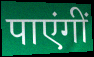
पाएंगीं